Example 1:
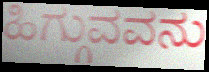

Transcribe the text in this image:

ಹಿಗ್ಗುವವನು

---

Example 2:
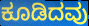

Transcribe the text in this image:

ಕೂಡಿದವು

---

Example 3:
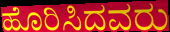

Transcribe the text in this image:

ಹೊರಿಸಿದವರು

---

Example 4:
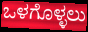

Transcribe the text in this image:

ಒಳಗೊಳ್ಳಲು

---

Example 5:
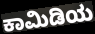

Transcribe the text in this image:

ಕಾಮಿಡಿಯ